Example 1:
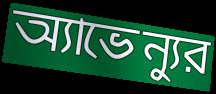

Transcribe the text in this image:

অ্যাভেন্যুর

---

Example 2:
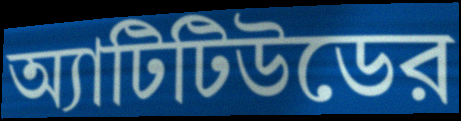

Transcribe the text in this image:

অ্যাটিটিউডের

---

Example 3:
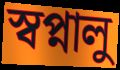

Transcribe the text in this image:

স্বপ্নালু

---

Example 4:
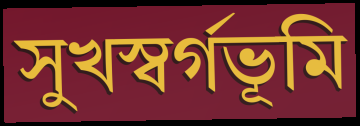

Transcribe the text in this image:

সুখস্বর্গভূমি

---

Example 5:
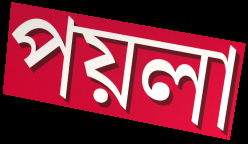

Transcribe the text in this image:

পয়লা